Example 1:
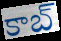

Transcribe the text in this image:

కాబ్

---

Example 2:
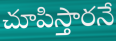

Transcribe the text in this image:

చూపిస్తారనే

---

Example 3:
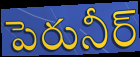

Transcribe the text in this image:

పెరునీర్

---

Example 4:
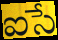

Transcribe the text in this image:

ఐసే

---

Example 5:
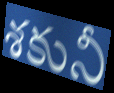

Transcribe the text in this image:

శకునీ